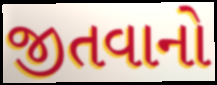
જીતવાનો